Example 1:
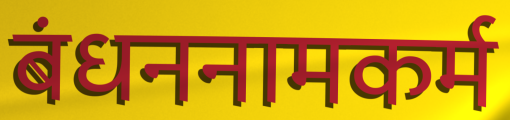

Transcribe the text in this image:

बंधननामकर्म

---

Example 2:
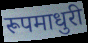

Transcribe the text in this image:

रूपमाधुरी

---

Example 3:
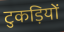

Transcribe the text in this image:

टुकड़ियों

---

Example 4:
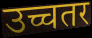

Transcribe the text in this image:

उच्चतर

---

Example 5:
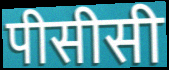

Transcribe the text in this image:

पीसीसी